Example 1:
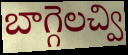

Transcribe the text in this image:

బాగ్గెలచ్వి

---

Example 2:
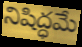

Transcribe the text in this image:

నిషిద్ధమే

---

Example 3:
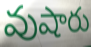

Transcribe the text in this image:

వుషారు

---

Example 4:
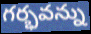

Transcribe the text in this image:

గర్భవన్ను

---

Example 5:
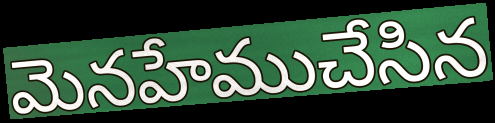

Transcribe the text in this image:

మెనహేముచేసిన